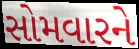
સોમવારને